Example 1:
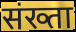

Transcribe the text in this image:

संख्ता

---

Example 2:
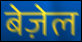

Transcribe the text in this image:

बेज़ेल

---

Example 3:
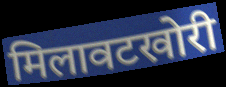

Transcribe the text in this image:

मिलावटखोरी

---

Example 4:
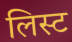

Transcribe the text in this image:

लिस्ट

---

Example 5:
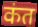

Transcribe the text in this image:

कंत